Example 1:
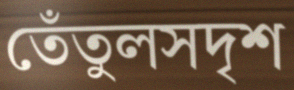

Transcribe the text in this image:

তেঁতুলসদৃশ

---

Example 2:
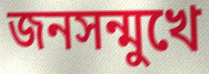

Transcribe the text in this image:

জনসন্মুখে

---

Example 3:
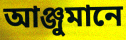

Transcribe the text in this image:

আঞ্জুমানে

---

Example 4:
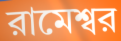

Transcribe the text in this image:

রামেশ্বর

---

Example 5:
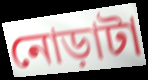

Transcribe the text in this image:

নোড়াটা